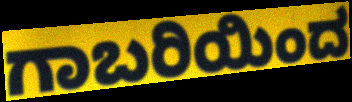
ಗಾಬರಿಯಿಂದ